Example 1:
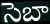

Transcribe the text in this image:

సెబా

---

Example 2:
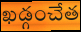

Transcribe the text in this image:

ఖడ్గంచేత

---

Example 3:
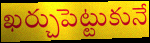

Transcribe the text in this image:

ఖర్చుపెట్టుకునే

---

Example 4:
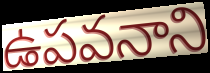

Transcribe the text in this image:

ఉపవనాని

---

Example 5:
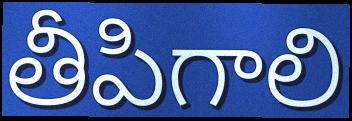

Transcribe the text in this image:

తీపిగాలి